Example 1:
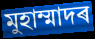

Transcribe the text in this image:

মুহাম্মাদৰ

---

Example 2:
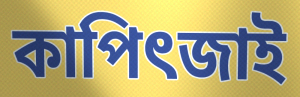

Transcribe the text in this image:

কাপিৎজাই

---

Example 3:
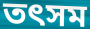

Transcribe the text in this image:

তৎসম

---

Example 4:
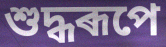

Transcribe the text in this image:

শুদ্ধৰূপে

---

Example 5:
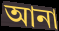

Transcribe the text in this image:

আনা